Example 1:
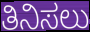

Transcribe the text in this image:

ತಿನಿಸಲು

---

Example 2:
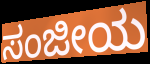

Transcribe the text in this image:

ಸಂಜೀಯ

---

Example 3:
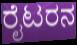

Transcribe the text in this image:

ರೈಟರನ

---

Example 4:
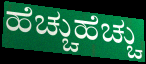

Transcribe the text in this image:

ಹೆಚ್ಚುಹೆಚ್ಚು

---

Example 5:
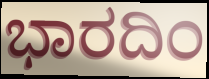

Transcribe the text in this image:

ಭಾರದಿಂ